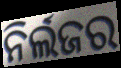
ନିର୍ଲଜର